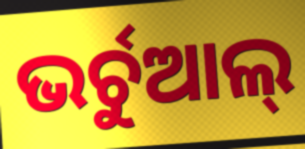
ଭର୍ଚୁଆଲ୍